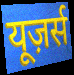
यूज़र्स